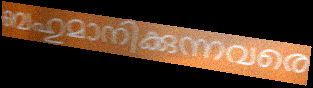
ബഹുമാനിക്കുന്നവരെ